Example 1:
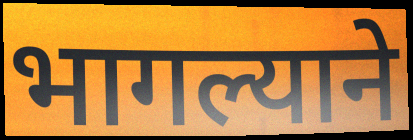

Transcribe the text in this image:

भागल्याने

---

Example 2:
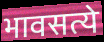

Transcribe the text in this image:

भावसत्ये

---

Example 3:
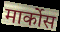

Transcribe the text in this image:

मार्कोस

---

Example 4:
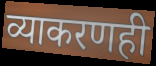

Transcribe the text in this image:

व्याकरणही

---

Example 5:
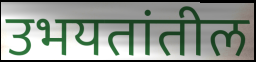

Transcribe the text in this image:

उभयतांतील